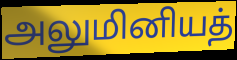
அலுமினியத்